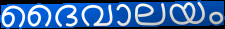
ദൈവാലയം